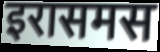
इरासमस